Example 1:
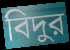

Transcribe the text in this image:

বিদুর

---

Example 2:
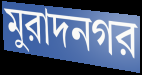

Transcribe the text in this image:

মুরাদনগর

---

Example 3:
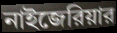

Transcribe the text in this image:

নাইজেরিয়ার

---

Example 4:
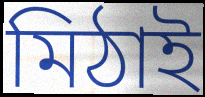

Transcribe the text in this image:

মিঠাই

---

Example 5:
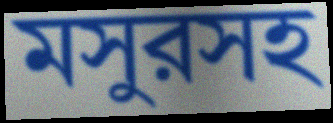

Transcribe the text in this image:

মসুরসহ